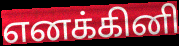
எனக்கினி